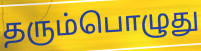
தரும்பொழுது